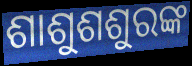
ଶାଶୁଶଶୁରଙ୍କ